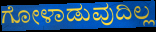
ಗೋಳಾಡುವುದಿಲ್ಲ